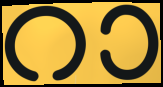
റാ